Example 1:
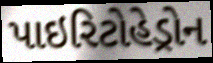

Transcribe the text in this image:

પાઇરિટોહેડ્રોન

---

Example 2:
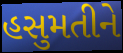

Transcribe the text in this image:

હસુમતીને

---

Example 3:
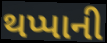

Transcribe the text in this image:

થપ્પાની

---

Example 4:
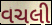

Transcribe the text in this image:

વચલી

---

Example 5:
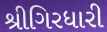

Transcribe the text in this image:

શ્રીગિરધારી